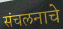
संचलनाचे